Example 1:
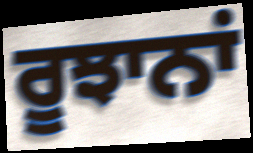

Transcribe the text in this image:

ਰੂਝਾਨਾਂ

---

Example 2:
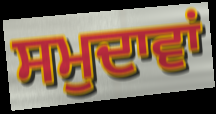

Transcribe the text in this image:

ਸਮੁਦਾਵਾਂ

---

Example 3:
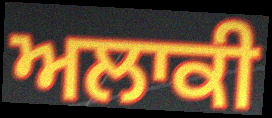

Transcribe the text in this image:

ਅਲਾਕੀ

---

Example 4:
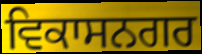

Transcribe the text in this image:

ਵਿਕਾਸਨਗਰ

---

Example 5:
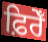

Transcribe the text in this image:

ਫ਼ਿਰੇਁ